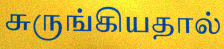
சுருங்கியதால்